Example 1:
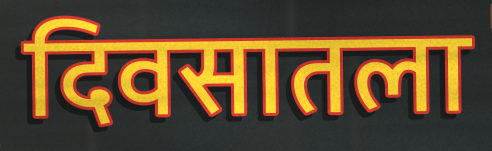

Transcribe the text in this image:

दिवसातला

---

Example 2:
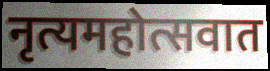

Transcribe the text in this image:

नृत्यमहोत्सवात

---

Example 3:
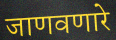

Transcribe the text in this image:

जाणवणारे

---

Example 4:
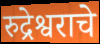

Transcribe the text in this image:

रुद्रेश्वराचे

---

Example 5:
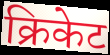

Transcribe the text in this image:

क्रिकेट